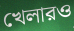
খেলারও